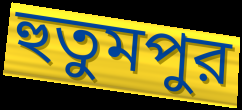
হুতুমপুর